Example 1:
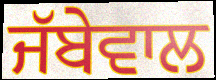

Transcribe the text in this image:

ਜੱਬੇਵਾਲ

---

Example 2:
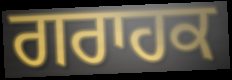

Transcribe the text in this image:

ਗਰਾਹਕ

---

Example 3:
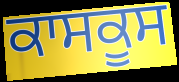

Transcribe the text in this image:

ਕਾਸਕੂਸ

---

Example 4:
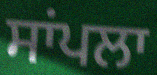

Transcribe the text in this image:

ਸਾਂਪਲਾ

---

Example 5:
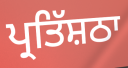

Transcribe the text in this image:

ਪ੍ਰਤਿੱਸ਼ਠਾ